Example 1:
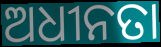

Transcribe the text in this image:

ଅଧୀନତା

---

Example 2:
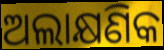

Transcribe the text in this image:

ଅଲାକ୍ଷଣିକ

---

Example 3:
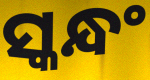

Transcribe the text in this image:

ସ୍କନ୍ଧଂ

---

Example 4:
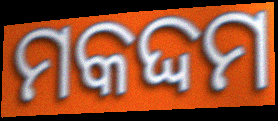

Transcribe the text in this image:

ମକଦ୍ଦମ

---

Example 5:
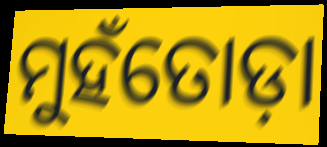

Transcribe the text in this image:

ମୁହଁତୋଡ଼ା